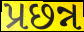
પ્રછન્ન